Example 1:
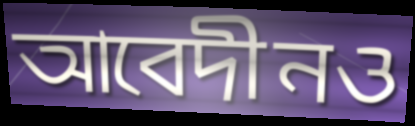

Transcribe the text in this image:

আবেদীনও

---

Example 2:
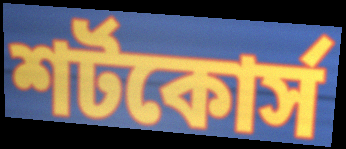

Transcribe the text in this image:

শর্টকোর্স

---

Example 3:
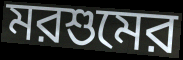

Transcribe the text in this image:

মরশুমের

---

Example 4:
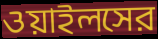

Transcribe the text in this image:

ওয়াইলসের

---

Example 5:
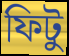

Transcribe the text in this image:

ফিটু